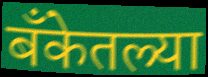
बँकेतल्या